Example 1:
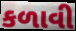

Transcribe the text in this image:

કળાવી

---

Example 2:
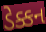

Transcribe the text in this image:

ડેક્કન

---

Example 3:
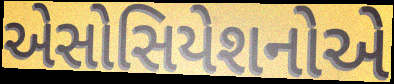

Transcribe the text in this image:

એસોસિયેશનોએ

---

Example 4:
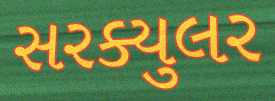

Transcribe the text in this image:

સરક્યુલર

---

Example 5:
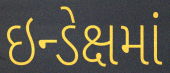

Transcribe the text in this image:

ઇન્ડેક્ષમાં